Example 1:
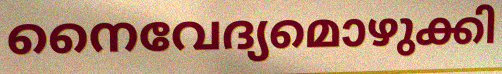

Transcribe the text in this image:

നൈവേദ്യമൊഴുക്കി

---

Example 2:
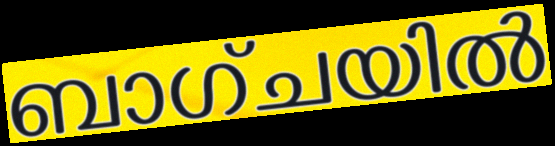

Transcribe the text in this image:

ബാഗ്ചയിൽ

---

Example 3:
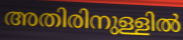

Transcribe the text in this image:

അതിരിനുള്ളിൽ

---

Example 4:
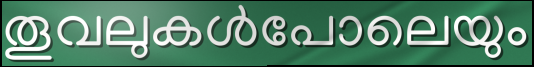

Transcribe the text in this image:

തൂവലുകൾപോലെയും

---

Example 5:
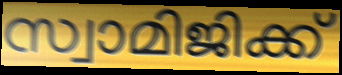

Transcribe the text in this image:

സ്വാമിജിക്ക്